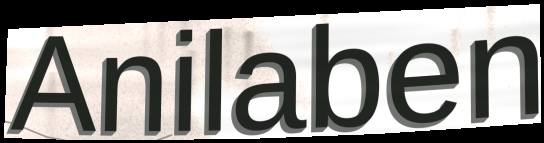
Anilaben